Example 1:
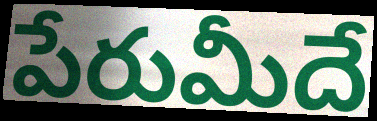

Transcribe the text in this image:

పేరుమీదే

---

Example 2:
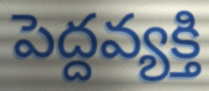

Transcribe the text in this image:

పెద్దవ్యక్తి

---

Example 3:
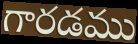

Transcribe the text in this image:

గారడము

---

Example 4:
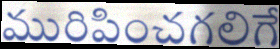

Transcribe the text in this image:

మురిపించగలిగే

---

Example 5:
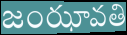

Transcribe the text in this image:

జంఝావతి